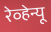
रेव्हेन्यू